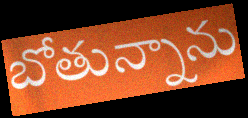
బోతున్నాను